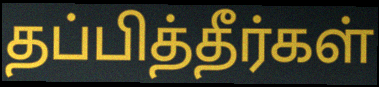
தப்பித்தீர்கள்